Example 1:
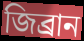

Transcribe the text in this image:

জিব্রান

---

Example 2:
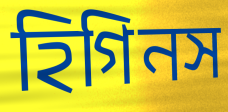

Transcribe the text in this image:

হিগিনস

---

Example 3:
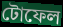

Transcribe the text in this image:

টোফেল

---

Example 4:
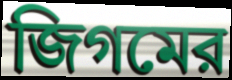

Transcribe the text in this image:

জিগমের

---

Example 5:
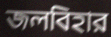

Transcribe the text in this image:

জলবিহার